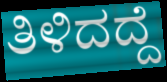
ತಿಳಿದದ್ದೆ